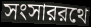
সংসাররথে